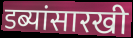
डब्यांसारखी